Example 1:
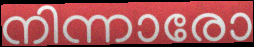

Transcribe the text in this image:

നിന്നാരോ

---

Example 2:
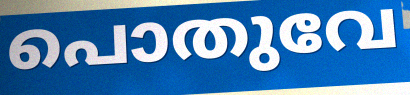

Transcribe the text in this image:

പൊതുവേ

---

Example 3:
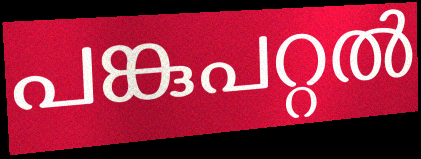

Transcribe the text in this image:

പങ്കുപറ്റൽ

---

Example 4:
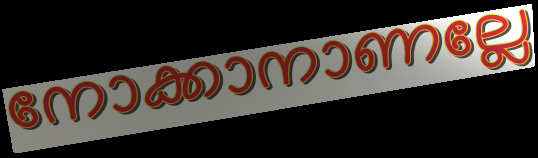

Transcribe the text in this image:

നോക്കാനാണല്ലേ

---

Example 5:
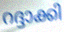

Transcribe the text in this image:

റദ്ദാക്കി